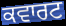
ਕਵਾਰਟ